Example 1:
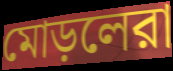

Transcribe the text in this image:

মোড়লেরা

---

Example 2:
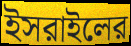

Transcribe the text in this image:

ইসরাইলের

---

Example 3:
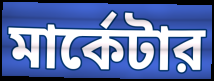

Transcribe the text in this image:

মার্কেটার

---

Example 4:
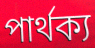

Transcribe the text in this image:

পার্থক্য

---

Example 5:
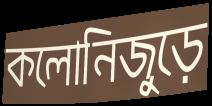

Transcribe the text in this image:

কলোনিজুড়ে